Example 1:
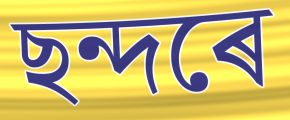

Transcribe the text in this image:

ছন্দৰে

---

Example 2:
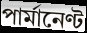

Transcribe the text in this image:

পাৰ্মানেণ্ট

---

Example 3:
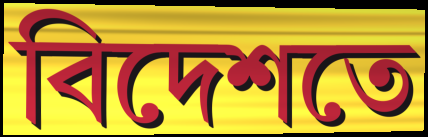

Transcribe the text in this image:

বিদেশতে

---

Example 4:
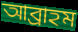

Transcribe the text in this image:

আব্ৰাহম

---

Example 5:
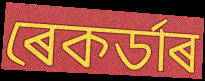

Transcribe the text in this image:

ৰেকৰ্ডাৰ